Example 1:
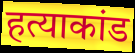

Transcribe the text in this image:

हत्याकांड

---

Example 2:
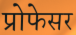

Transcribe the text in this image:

प्रोफेसर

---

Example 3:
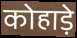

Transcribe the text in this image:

कोहाड़े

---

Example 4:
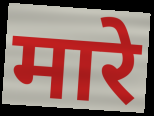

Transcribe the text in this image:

मारे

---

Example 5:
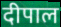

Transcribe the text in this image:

दीपाल